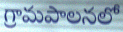
గ్రామపాలనలో